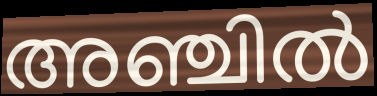
അഞ്ചിൽ